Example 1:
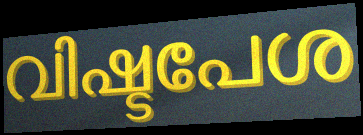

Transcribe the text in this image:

വിഷ്ടപേശ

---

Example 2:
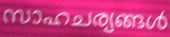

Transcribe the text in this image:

സാഹചര്യങ്ങൾ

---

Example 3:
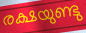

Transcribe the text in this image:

രക്ഷയുണ്ടു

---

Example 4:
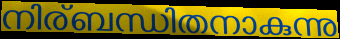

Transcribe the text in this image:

നിര്ബന്ധിതനാകുന്നു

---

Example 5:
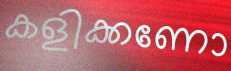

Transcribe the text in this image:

കളിക്കണോ